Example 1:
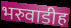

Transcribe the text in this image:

भरुवाडीह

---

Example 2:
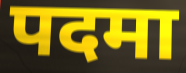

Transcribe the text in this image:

पदमा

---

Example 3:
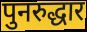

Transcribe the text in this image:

पुनरुद्धार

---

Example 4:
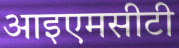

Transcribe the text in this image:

आइएमसीटी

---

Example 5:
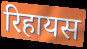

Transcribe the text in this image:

रिहायस